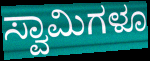
ಸ್ವಾಮಿಗಳೂ